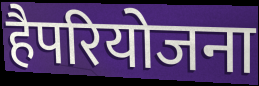
हैपरियोजना